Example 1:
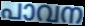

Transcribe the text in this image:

പാവന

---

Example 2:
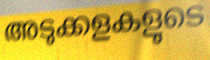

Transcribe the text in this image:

അടുക്കളകളുടെ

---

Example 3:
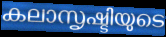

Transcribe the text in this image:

കലാസൃഷ്ടിയുടെ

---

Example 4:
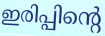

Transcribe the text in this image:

ഇരിപ്പിന്റെ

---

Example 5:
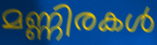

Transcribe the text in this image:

മണ്ണിരകൾ